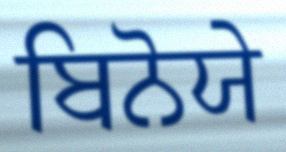
ਬਿਨੋਯੇ